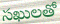
సఖులతో